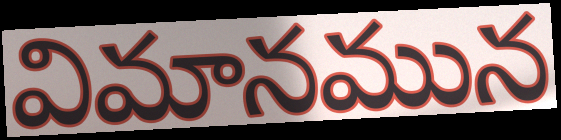
విమానమున